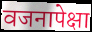
वजनापेक्षा